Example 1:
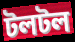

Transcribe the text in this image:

টলটল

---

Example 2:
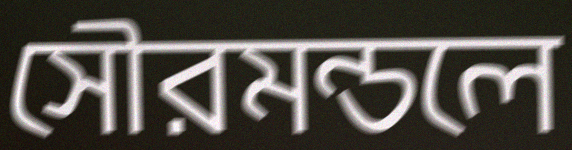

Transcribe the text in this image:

সৌরমন্ডলে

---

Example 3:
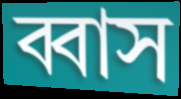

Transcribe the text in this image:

ব্বাস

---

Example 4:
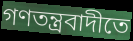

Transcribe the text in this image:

গণতন্ত্রবাদীতে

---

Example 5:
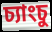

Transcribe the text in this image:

চ্যাংচু